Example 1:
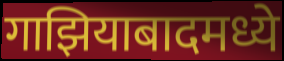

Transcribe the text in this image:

गाझियाबादमध्ये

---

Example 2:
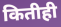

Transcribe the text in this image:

कितीही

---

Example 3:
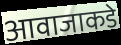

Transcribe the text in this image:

आवाजाकडे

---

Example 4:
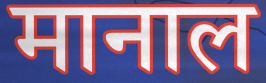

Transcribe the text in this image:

मानाल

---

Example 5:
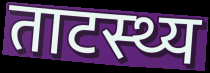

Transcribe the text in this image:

ताटस्थ्य